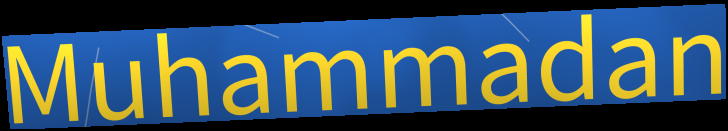
Muhammadan